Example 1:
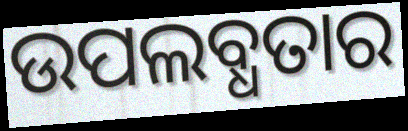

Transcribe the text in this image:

ଉପଲବ୍ଧତାର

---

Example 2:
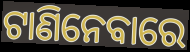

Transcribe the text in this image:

ଟାଣିନେବାରେ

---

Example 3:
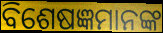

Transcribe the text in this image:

ବିଶେଷଜ୍ଞମାନଙ୍କ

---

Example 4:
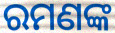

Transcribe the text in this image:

ରମଣଙ୍କ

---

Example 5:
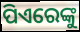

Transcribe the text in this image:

ପିଏରେଙ୍କୁ